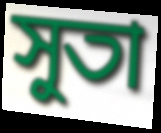
সুতা